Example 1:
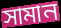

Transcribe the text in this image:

সামান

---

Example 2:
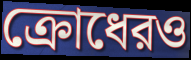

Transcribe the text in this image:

ক্রোধেরও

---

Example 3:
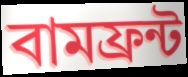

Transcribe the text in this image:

বামফ্রন্ট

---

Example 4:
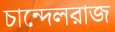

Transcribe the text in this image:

চান্দেলরাজ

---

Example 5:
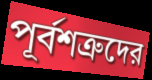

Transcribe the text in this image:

পূর্বশত্রুদের